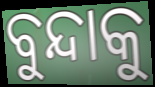
ବୁନ୍ଦାକୁ